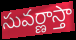
సువర్ణాస్తా